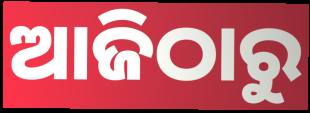
ଆଜିଠାରୁ